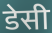
डेसी